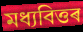
মধ্যবিত্তৰ